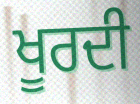
ਖੂਰਦੀ